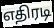
எதிரடி